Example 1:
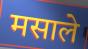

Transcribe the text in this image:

मसाले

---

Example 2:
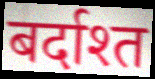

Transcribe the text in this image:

बर्दाश्त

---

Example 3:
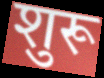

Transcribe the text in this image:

शुरू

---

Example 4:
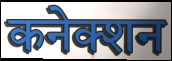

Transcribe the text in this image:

कनेक्शन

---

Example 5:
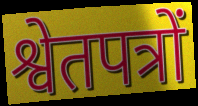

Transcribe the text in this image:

श्वेतपत्रों